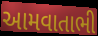
આમવાતાભી